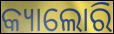
କ୍ୟାଲୋରି